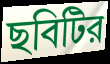
ছবিটির